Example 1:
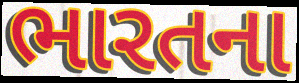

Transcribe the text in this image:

ભારતના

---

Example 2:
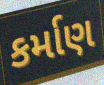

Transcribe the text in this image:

કર્માણ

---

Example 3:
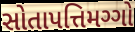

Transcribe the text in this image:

સોતાપત્તિમગ્ગો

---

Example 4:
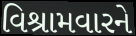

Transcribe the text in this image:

વિશ્રામવારને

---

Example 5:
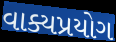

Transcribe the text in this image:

વાક્યપ્રયોગ